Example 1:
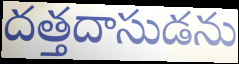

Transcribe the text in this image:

దత్తదాసుడను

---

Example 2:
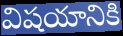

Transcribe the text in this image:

విషయానికి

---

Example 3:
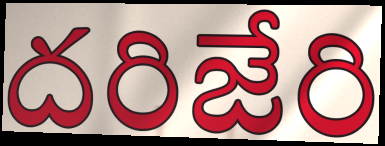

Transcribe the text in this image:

దరిజేరి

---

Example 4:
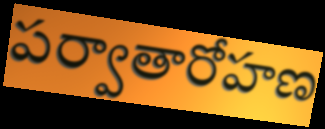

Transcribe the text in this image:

పర్వాతారోహణ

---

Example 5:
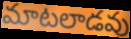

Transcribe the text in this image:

మాటలాడవు